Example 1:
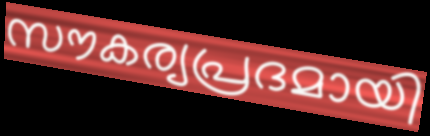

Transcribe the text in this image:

സൗകര്യപ്രദമായി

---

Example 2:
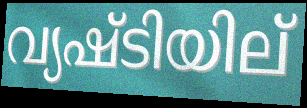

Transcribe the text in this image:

വ്യഷ്ടിയില്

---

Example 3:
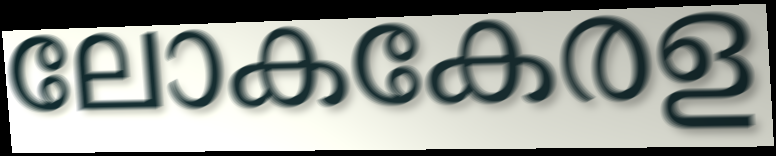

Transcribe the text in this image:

ലോകകേരള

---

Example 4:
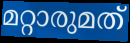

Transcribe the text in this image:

മറ്റാരുമത്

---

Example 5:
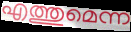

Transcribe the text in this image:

എത്തുമെന്ന